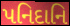
પનિદાનિ